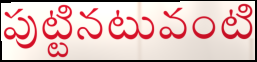
పుట్టినటువంటి